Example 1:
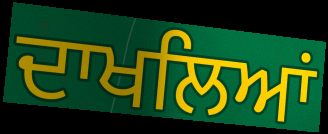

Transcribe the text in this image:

ਦਾਖਲਿਆਂ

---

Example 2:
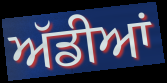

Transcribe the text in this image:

ਅੱਡੀਆਂ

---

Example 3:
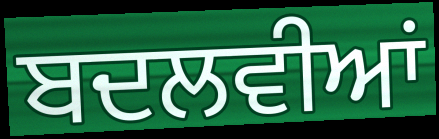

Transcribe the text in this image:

ਬਦਲਵੀਆਂ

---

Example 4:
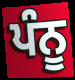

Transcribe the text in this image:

ਪੰਨੂ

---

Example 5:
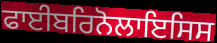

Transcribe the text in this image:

ਫਾਈਬਰਿਨੋਲਾਇਸਿਸ